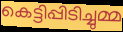
കെട്ടിപ്പിടിച്ചുമ്മ